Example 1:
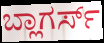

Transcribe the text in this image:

ಬ್ಲಾಗರ್ಸ್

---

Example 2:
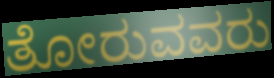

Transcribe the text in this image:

ತೋರುವವರು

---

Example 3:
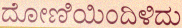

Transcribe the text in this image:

ದೋಣಿಯಿಂದಿಳಿದು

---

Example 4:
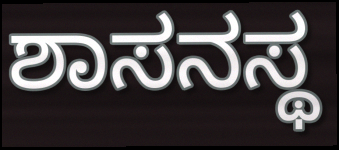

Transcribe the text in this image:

ಶಾಸನಸ್ಥ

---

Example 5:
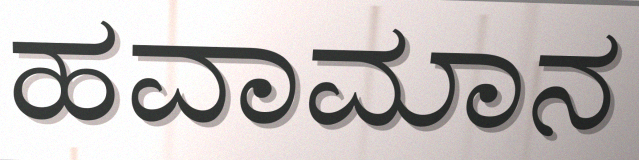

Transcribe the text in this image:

ಹವಾಮಾನ